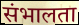
संभालता